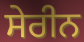
ਸੇਰੀਨ